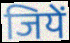
जियें